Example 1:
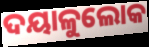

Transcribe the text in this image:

ଦୟାଳୁଲୋକ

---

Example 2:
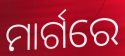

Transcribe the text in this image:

ମାର୍ଗରେ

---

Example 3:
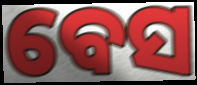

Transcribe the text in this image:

ବେସ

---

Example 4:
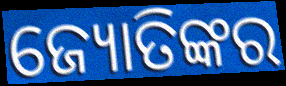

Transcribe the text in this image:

ଜ୍ୟୋତିଙ୍କର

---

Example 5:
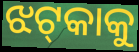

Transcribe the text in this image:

ଝଟ୍‌କାକୁ